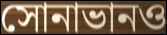
সোনাভানও